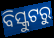
ବିସ୍କୁଟରୁ